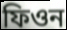
ফিওন